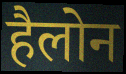
हैलोन